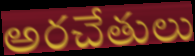
అరచేతులు